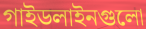
গাইডলাইনগুলো